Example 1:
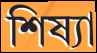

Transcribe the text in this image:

শিষ্যা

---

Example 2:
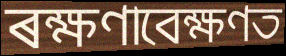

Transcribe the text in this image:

ৰক্ষণাবেক্ষণত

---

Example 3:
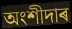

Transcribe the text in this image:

অংশীদাৰ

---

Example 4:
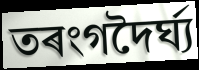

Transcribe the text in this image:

তৰংগদৈৰ্ঘ্য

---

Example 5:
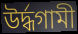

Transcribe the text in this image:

উৰ্দ্ধগামী